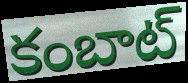
కంబాట్